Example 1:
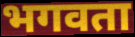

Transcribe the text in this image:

भगवता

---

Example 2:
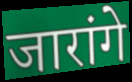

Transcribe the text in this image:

जारांगे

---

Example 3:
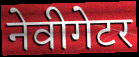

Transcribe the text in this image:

नेवीगेटर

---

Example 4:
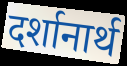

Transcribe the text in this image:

दर्शानार्थ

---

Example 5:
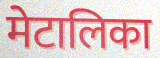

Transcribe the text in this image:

मेटालिका